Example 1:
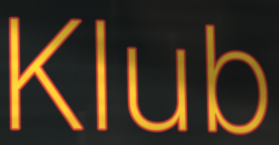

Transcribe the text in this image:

Klub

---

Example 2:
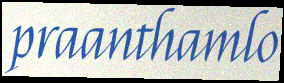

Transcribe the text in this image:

praanthamlo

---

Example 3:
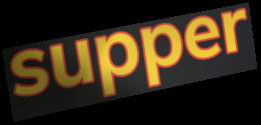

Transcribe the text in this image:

supper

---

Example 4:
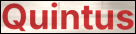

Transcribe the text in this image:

Quintus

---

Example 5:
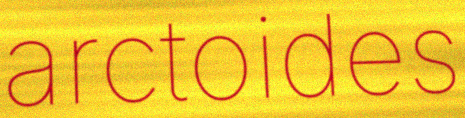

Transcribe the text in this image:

arctoides